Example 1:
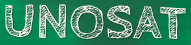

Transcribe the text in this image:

UNOSAT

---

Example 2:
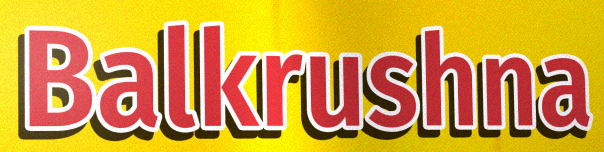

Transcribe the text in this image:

Balkrushna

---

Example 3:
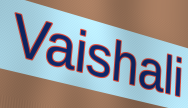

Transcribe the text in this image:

Vaishali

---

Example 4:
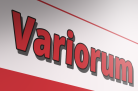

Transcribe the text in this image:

Variorum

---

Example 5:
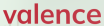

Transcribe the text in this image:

valence